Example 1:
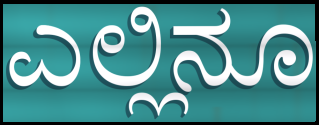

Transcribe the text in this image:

ಎಲ್ಲಿನೂ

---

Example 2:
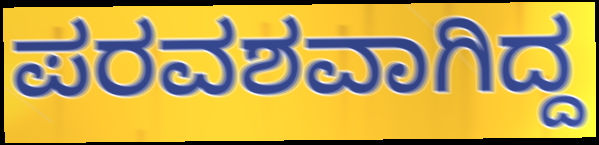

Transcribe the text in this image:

ಪರವಶವಾಗಿದ್ದ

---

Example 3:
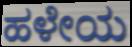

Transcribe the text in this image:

ಹಳೇಯ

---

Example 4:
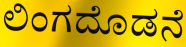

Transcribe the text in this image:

ಲಿಂಗದೊಡನೆ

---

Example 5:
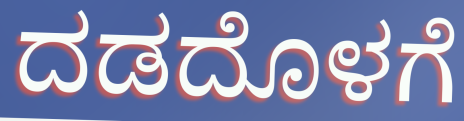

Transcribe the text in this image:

ದಡದೊಳಗೆ